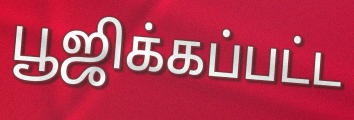
பூஜிக்கப்பட்ட